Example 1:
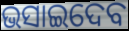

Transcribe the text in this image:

ଭସାଇଦେବ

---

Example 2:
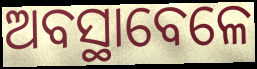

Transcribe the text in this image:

ଅବସ୍ଥାବେଳେ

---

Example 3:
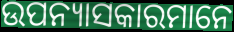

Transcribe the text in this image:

ଉପନ୍ୟାସକାରମାନେ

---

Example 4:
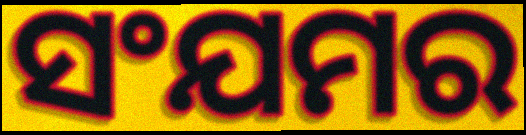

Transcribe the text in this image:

ସଂଯମର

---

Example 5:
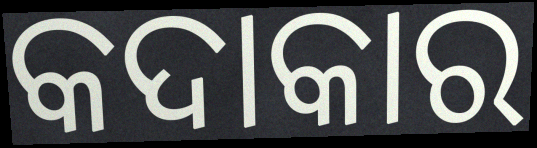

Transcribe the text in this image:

କଦାକାର